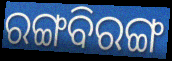
ରଙ୍ଗବିରଙ୍ଗ